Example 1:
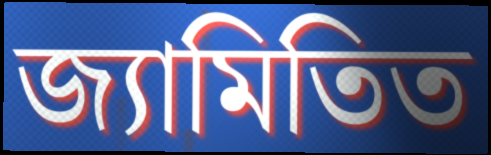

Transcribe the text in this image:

জ্যামিতিত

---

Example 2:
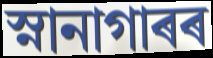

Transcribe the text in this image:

স্নানাগাৰৰ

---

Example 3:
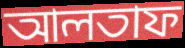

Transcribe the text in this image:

আলতাফ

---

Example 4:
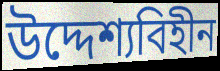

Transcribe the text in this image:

উদ্দেশ্যবিহীন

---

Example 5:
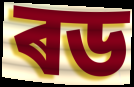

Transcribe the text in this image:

ৰড